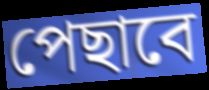
পেছাবে